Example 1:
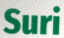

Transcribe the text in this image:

Suri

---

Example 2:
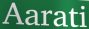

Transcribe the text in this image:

Aarati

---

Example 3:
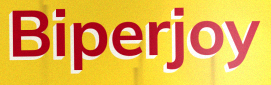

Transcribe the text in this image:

Biperjoy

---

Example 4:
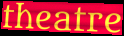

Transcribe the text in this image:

theatre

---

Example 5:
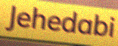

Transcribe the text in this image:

Jehedabi